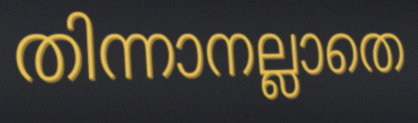
തിന്നാനല്ലാതെ